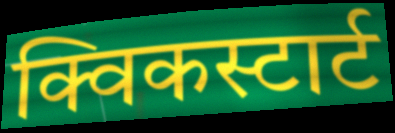
क्विकस्टार्ट